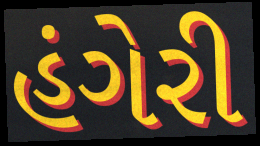
હંગેરી